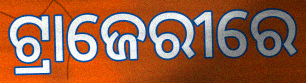
ଟ୍ରାଜେରୀରେ